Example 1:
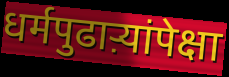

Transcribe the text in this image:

धर्मपुढाऱ्‍यांपेक्षा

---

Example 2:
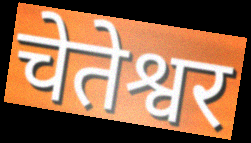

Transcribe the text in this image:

चेतेश्वर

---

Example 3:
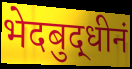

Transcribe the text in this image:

भेदबुद्धीनं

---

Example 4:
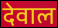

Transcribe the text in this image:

देवाल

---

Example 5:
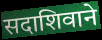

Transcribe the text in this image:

सदाशिवाने